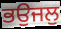
ਭਉਜਲੁ